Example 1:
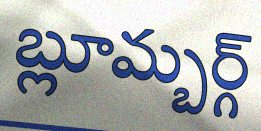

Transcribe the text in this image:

బ్లూమ్బర్గ్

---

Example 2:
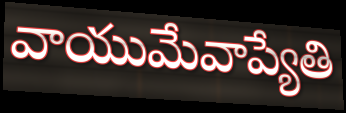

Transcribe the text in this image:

వాయుమేవాప్యేతి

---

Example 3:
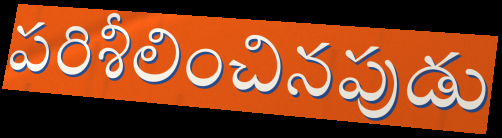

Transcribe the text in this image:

పరిశీలించినపుడు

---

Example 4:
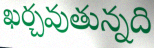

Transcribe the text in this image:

ఖర్చవుతున్నది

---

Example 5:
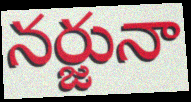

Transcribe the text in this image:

నర్జునా